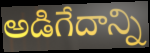
అడిగేదాన్ని